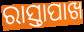
ରାସ୍ତାପାଖ